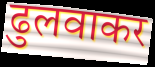
ढुलवाकर